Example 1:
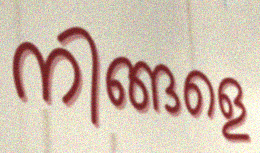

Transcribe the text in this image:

നിങ്ങളെ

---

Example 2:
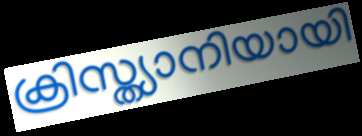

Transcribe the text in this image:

ക്രിസ്ത്യാനിയായി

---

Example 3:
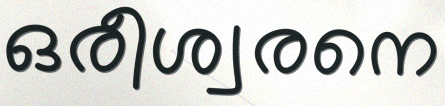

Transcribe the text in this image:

ഒരീശ്വരനെ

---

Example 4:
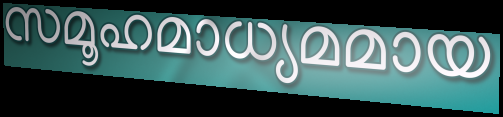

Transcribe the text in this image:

സമൂഹമാധ്യമമായ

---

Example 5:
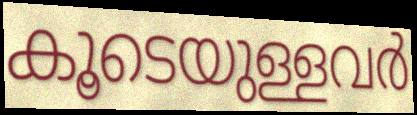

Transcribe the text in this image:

കൂടെയുള്ളവർ